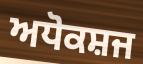
ਅਧੋਕਸ਼ਜ